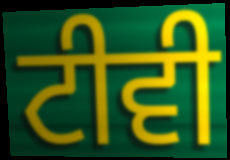
ਟੀਵੀ